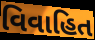
વિવાહિત